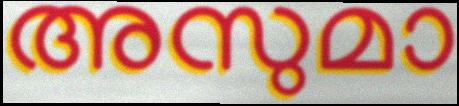
അസുമാ